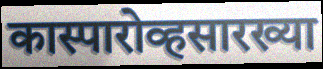
कास्पारोव्हसारख्या